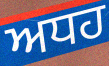
ਅਧਹ